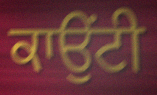
ਕਾਉਂਟੀ